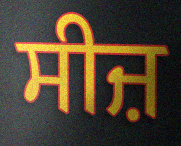
ਸੀਜ਼